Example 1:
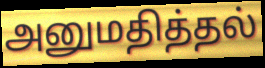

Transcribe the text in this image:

அனுமதித்தல்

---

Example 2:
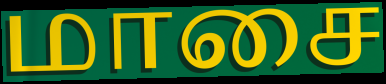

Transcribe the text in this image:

மாசை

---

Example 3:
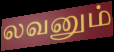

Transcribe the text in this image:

லவனும்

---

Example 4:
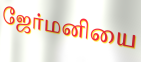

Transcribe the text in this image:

ஜேர்மனியை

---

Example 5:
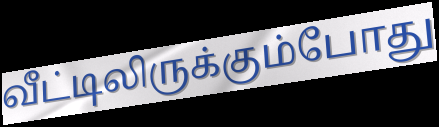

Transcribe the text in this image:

வீட்டிலிருக்கும்போது